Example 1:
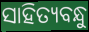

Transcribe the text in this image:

ସାହିତ୍ୟବନ୍ଧୁ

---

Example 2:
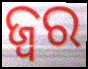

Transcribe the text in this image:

ଜ୍ଵର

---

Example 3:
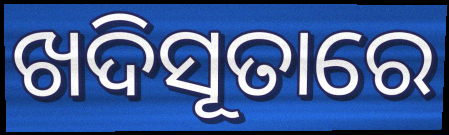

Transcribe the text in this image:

ଖଦିସୂତାରେ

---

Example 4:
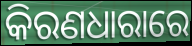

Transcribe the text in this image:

କିରଣଧାରାରେ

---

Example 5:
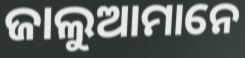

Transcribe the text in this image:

ଜାଲୁଆମାନେ